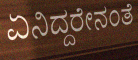
ಏನಿದ್ದರೇನಂತೆ